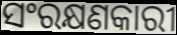
ସଂରକ୍ଷଣକାରୀ